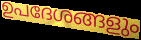
ഉപദേശങ്ങളും